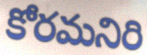
కోరమనిరి